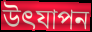
উৎযাপন